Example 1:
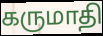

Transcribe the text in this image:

கருமாதி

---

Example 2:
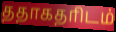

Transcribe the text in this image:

ததாகதரிடம்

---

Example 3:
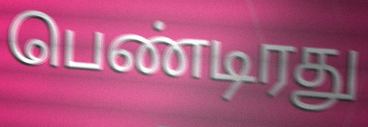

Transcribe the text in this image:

பெண்டிரது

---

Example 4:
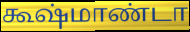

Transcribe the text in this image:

கூஷ்மாண்டா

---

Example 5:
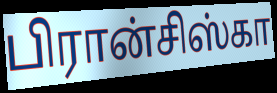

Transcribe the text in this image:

பிரான்சிஸ்கா